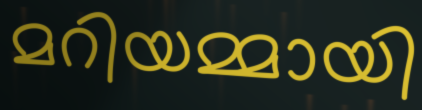
മറിയമ്മായി